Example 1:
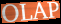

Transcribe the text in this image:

OLAP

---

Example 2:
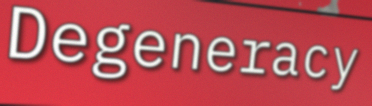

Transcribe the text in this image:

Degeneracy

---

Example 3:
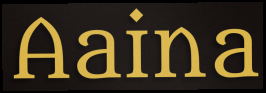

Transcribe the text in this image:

Aaina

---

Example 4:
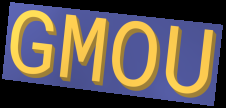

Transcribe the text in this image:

GMOU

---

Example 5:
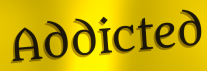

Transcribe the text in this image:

Addicted